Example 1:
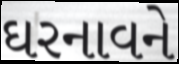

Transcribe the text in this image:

ઘરનાવને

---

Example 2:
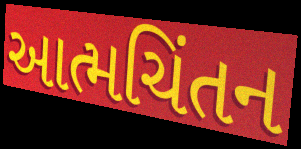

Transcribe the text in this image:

આત્મચિંતન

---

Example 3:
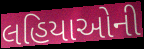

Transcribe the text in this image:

લહિયાઓની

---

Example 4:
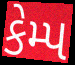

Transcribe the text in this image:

કેમ્પ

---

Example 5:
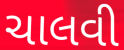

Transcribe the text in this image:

ચાલવી